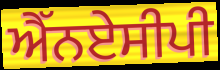
ਐੱਨਏਸੀਪੀ